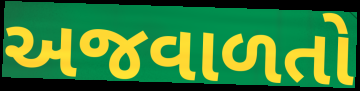
અજવાળતો